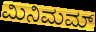
ಮಿನಿಮಮ್